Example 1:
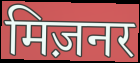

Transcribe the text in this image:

मिज़नर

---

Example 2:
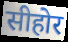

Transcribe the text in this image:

सीहोर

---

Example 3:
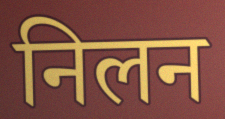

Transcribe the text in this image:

निलन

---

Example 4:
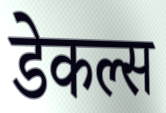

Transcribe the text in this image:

डेकल्स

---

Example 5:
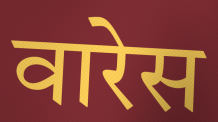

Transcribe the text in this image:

वारेस